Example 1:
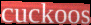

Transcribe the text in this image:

cuckoos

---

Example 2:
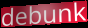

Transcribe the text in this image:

debunk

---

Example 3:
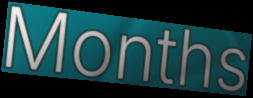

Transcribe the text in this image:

Months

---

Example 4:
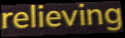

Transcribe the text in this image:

relieving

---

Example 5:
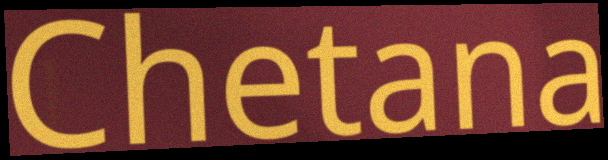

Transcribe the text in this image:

Chetana